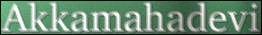
Akkamahadevi